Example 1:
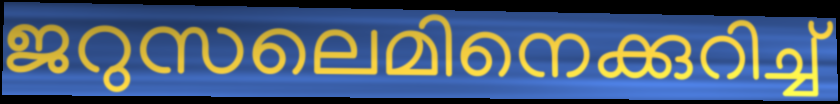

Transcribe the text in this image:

ജറുസലെമിനെക്കുറിച്ച്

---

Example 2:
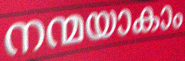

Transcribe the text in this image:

നന്മയാകാം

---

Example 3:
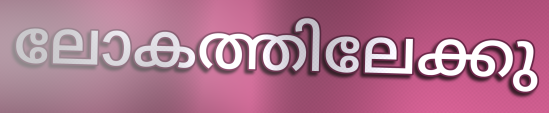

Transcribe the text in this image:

ലോകത്തിലേക്കു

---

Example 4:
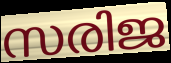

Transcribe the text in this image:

സരിജ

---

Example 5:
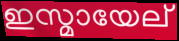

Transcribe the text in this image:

ഇസ്മായേല്